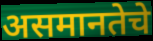
असमानतेचे